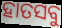
ହାତସବୁ